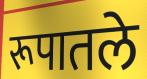
रूपातले